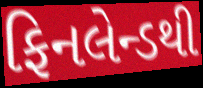
ફિનલેન્ડથી